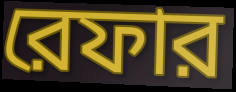
রেফার